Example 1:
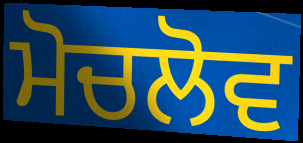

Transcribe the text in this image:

ਮੋਚਲੋਵ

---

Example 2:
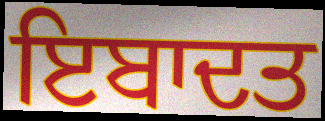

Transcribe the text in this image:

ਇਬਾਦਤ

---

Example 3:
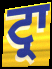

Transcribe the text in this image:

ਟ੍ਰਾ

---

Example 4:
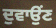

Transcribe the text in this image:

ਦੁਵਾਉਂਣ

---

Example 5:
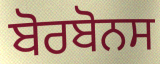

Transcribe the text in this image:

ਬੋਰਬੋਨਸ